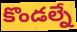
కొండల్నే